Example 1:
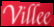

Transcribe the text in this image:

Villee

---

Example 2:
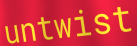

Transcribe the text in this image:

untwist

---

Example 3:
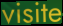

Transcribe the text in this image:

visite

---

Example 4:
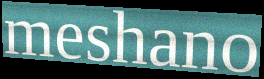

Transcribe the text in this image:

meshano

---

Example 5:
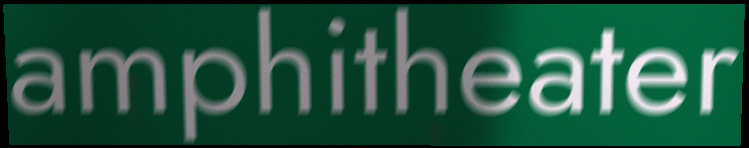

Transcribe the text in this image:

amphitheater